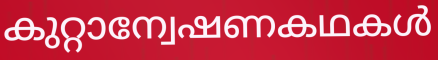
കുറ്റാന്വേഷണകഥകൾ